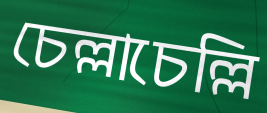
চেল্লাচেল্লি